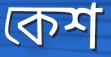
কেশ